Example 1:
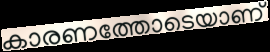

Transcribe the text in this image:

കാരണത്തോടെയാണ്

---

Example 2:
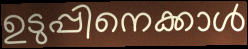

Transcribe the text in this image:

ഉടുപ്പിനെക്കാൾ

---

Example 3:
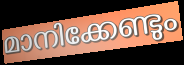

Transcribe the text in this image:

മാനിക്കേണ്ടും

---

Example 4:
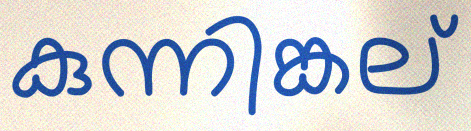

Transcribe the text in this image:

കുന്നിങ്കല്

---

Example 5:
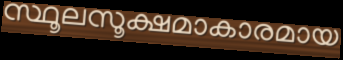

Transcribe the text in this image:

സ്ഥൂലസൂക്ഷമാകാരമായ